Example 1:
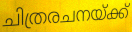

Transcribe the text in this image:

ചിത്രരചനയ്ക്ക്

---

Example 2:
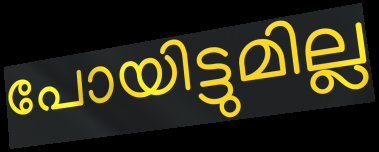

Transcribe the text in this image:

പോയിട്ടുമില്ല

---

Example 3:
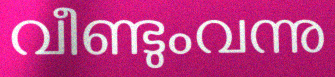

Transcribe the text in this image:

വീണ്ടുംവന്നു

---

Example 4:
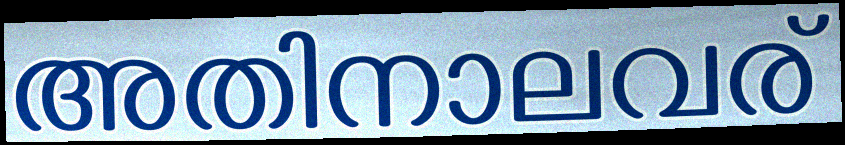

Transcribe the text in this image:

അതിനാലവര്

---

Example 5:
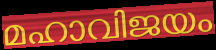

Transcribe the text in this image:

മഹാവിജയം